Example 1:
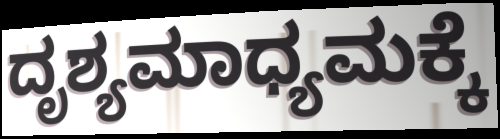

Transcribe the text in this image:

ದೃಶ್ಯಮಾಧ್ಯಮಕ್ಕೆ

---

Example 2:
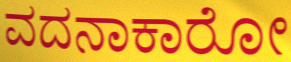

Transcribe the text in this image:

ವದನಾಕಾರೋ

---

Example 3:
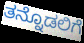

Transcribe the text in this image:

ತನ್ನೊಡಲಿಗೆ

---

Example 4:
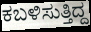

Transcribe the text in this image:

ಕಬಳಿಸುತ್ತಿದ್ದ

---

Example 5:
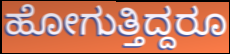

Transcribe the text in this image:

ಹೋಗುತ್ತಿದ್ದರೂ